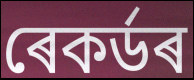
ৰেকৰ্ডৰ